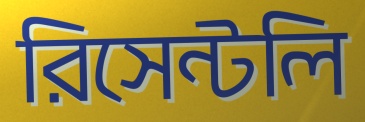
রিসেন্টলি